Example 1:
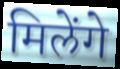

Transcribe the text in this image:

मिलेंगे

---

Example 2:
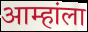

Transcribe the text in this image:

आम्हांला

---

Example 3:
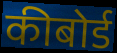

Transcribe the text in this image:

कीबोर्ड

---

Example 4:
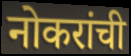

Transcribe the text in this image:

नोकरांची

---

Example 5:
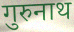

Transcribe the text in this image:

गुरुनाथ